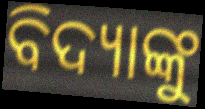
ବିଦ୍ୟାଙ୍କୁ